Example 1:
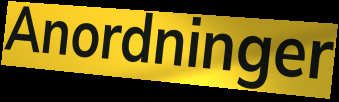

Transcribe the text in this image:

Anordninger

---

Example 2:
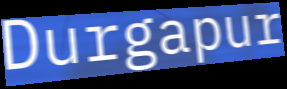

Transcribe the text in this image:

Durgapur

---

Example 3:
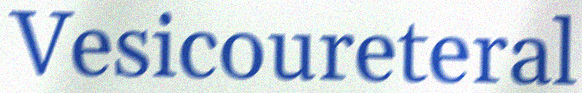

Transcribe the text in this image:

Vesicoureteral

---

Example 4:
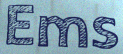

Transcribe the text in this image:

Ems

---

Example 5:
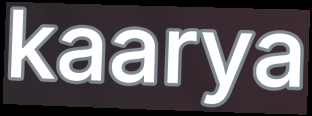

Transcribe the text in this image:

kaarya